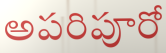
అపరిపూరో